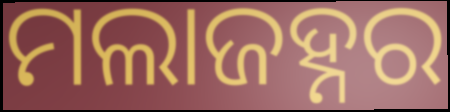
ମଲାଜହ୍ନର